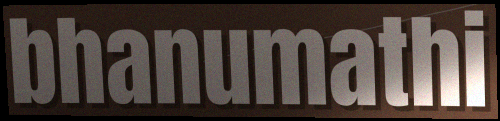
bhanumathi